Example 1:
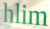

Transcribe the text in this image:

hlim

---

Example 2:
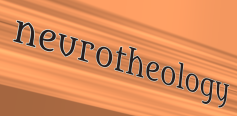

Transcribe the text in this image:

neurotheology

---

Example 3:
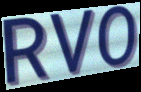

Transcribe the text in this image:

RVO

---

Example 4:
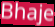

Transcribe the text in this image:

Bhaje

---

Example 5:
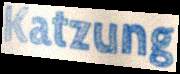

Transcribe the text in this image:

Katzung